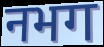
नभग